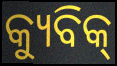
କ୍ୟୁବିକ୍